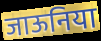
जाऊनिया